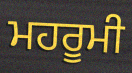
ਮਹਰੂਮੀ